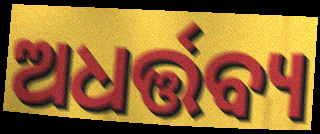
ଅଧର୍ତ୍ତବ୍ୟ